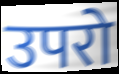
उपरो